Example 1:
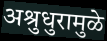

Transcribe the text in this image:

अश्रुधुरामुळे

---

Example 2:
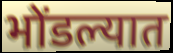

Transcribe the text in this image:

भोंडल्यात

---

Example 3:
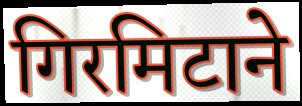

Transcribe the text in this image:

गिरमिटाने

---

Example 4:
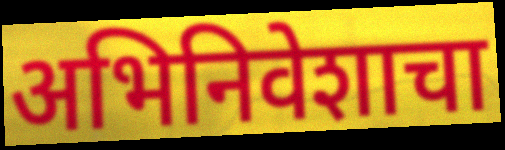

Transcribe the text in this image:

अभिनिवेशाचा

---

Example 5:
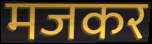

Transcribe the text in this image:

मजकर